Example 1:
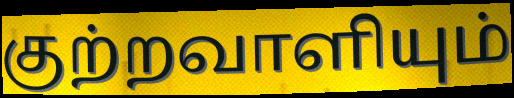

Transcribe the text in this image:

குற்றவாளியும்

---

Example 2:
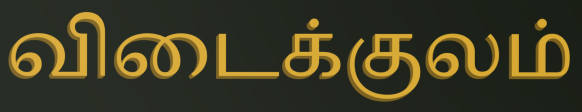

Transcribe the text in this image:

விடைக்குலம்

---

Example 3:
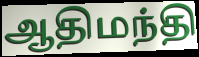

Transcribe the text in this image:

ஆதிமந்தி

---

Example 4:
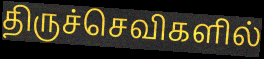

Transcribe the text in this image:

திருச்செவிகளில்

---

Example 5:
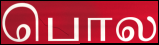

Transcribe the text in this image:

பொல